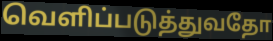
வெளிப்படுத்துவதோ